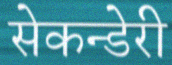
सेकन्डेरी